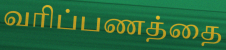
வரிப்பணத்தை